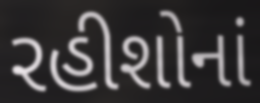
રહીશોનાં